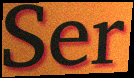
Ser